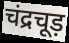
चंद्रचूड़